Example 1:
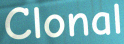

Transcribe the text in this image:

Clonal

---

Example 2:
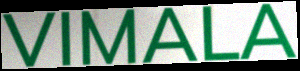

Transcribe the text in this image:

VIMALA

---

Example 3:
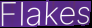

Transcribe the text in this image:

Flakes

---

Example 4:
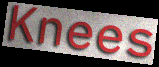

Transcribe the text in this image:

Knees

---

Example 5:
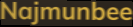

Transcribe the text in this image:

Najmunbee